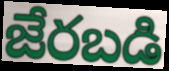
జేరబడి